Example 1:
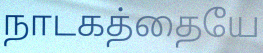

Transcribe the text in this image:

நாடகத்தையே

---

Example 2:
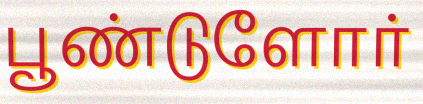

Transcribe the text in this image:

பூண்டுளோர்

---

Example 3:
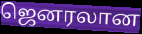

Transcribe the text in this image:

ஜெனரலான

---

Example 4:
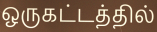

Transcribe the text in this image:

ஒருகட்டத்தில்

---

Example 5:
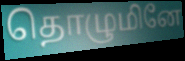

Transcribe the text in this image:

தொழுமினே